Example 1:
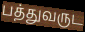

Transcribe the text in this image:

பத்துவருட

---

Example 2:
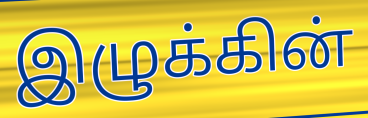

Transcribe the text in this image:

இழுக்கின்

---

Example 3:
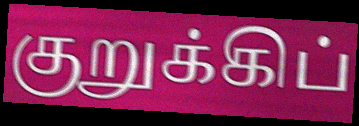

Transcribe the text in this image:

குறுக்கிப்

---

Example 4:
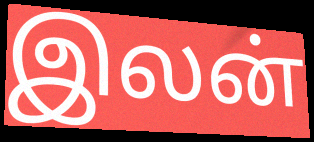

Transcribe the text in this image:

இலன்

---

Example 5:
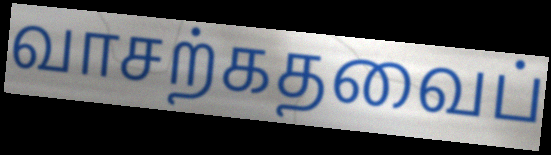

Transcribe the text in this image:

வாசற்கதவைப்